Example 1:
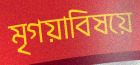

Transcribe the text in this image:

মৃগয়াবিষয়ে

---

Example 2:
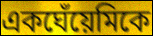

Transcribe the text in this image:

একঘেঁয়েমিকে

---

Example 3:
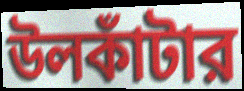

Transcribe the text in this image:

উলকাঁটার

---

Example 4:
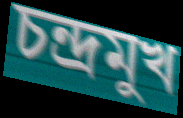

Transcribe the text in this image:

চন্দ্রমুখ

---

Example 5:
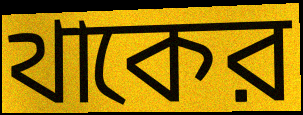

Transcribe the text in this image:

থাকের